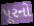
પૂરનો